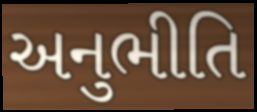
અનુભીતિ